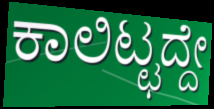
ಕಾಲಿಟ್ಟದ್ದೇ